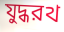
যুদ্ধরথ